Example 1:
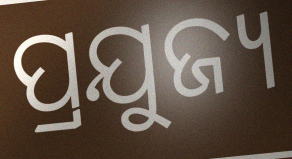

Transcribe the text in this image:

ପ୍ରଯୁଜ୍ୟ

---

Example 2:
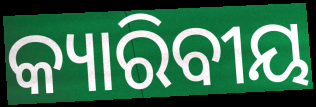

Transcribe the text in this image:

କ୍ୟାରିବୀୟ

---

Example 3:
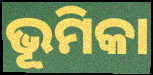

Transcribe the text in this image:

ଭୂମିକା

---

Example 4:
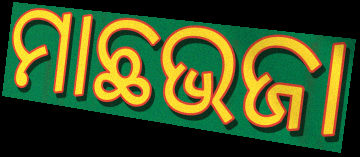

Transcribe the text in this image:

ମାଛଭଜା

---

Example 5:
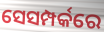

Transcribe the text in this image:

ସେସମ୍ପର୍କରେ